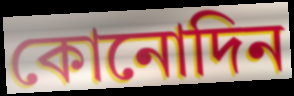
কোনোদিন